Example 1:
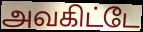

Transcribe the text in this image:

அவகிட்டே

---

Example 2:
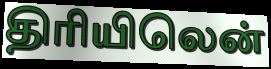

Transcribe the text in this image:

திரியிலென்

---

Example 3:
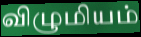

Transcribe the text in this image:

விழுமியம்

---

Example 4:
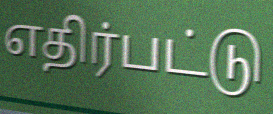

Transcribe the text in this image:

எதிர்பட்டு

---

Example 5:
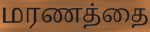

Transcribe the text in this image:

மரணத்தை